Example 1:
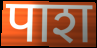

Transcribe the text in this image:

पाश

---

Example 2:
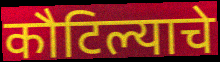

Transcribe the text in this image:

कौटिल्याचे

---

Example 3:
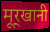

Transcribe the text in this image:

मूर्खानी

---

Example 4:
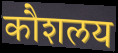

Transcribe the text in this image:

कौशलय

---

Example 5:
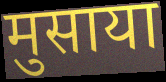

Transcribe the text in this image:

मुसाया